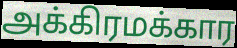
அக்கிரமக்கார